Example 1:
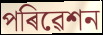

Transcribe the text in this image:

পৰিৱেশন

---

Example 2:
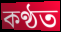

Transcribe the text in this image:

কণ্ঠত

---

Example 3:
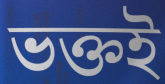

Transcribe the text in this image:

ভক্তই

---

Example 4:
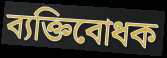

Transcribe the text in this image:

ব্যক্তিবোধক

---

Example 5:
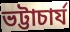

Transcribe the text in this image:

ভট্টাচাৰ্য